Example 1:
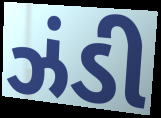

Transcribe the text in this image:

ઝંડી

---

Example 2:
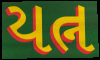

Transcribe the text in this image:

યત્ન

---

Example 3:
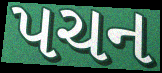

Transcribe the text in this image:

પચન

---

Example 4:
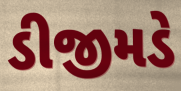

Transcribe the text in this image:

ડીજીમડે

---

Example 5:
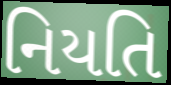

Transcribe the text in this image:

નિયતિ